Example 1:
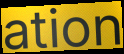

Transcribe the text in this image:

ation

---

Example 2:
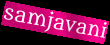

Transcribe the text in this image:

samjavani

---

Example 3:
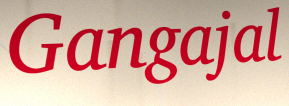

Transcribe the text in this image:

Gangajal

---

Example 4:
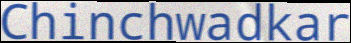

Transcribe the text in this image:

Chinchwadkar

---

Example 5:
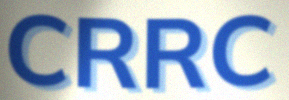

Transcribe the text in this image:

CRRC